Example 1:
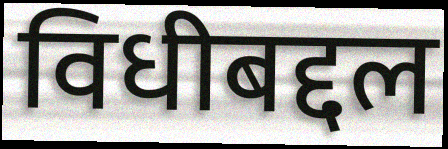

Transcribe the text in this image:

विधीबद्दल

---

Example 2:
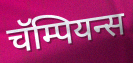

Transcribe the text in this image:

चॅम्पियन्स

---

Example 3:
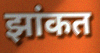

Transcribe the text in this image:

झांकत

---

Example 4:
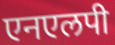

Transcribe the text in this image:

एनएलपी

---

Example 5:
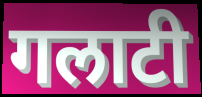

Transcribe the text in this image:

गलाटी